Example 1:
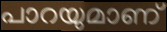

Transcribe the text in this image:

പാറയുമാണ്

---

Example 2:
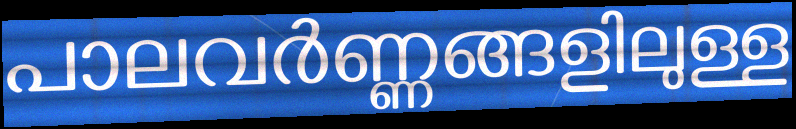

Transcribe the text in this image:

പാലവർണ്ണങ്ങളിലുള്ള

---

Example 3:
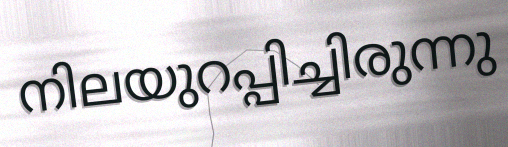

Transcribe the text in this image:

നിലയുറപ്പിച്ചിരുന്നു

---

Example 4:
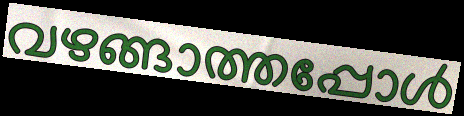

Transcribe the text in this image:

വഴങ്ങാത്തപ്പോൾ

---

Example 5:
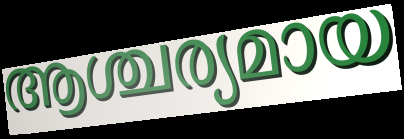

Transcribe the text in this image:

ആശ്ചര്യമായ